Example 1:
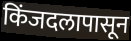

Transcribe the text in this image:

किंजदलापासून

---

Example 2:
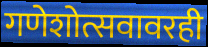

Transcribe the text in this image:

गणेशोत्सवावरही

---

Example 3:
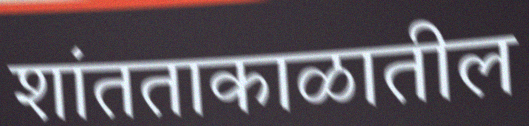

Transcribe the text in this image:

शांतताकाळातील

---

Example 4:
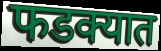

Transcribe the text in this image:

फडक्यात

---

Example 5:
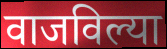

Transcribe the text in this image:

वाजविल्या